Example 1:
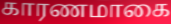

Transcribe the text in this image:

காரணமாகை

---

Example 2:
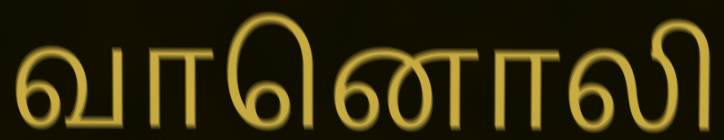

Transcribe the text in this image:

வானொலி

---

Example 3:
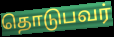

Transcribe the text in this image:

தொடுபவர்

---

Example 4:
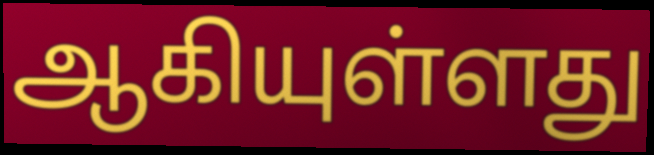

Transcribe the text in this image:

ஆகியுள்ளது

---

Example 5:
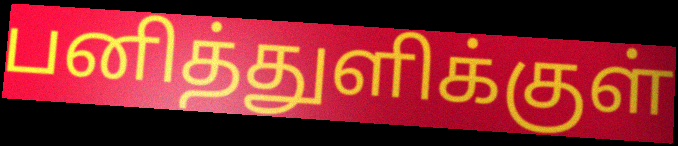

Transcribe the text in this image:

பனித்துளிக்குள்